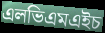
এলভিএমএইচ